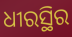
ଧୀରସ୍ଥିର